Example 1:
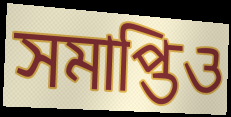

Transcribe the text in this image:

সমাপ্তিও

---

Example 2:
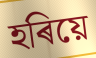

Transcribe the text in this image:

হৰিয়ে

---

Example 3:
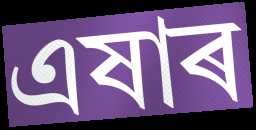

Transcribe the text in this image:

এষাৰ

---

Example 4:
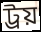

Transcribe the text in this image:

ট্ৰয়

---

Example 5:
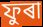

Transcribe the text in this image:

ফুৰা